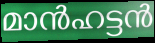
മാൻഹട്ടൻ